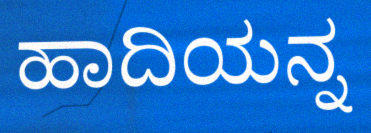
ಹಾದಿಯನ್ನ